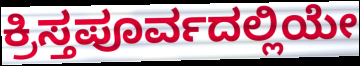
ಕ್ರಿಸ್ತಪೂರ್ವದಲ್ಲಿಯೇ